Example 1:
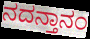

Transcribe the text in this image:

ನದನ್ತಾನಂ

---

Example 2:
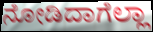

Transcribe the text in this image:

ನೋಡಿದಾಗೆಲ್ಲಾ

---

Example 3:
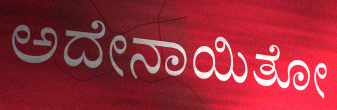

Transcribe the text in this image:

ಅದೇನಾಯಿತೋ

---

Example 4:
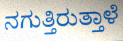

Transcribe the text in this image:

ನಗುತ್ತಿರುತ್ತಾಳೆ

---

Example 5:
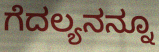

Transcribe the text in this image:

ಗೆದಲ್ಯನನ್ನೂ